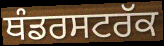
ਥੰਡਰਸਟਰੱਕ